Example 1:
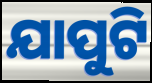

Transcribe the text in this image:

ଯାପୁଟି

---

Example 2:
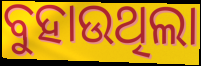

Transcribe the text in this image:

ବୁହାଉଥିଲା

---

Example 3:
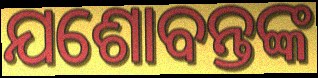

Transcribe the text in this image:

ଯଶୋବନ୍ତଙ୍କ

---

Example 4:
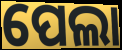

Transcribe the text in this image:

ପେଲା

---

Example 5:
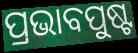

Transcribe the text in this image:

ପ୍ରଭାବପୁଷ୍ଟ